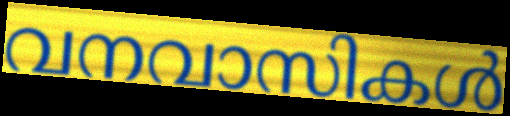
വനവാസികൾ